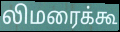
லிமரைக்கூ